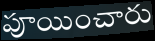
పూయించారు